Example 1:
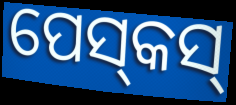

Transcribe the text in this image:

ପେସ୍‌କସ୍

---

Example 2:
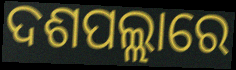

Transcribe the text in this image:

ଦଶପଲ୍ଲାରେ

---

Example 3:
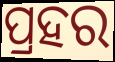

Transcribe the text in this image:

ପ୍ରହର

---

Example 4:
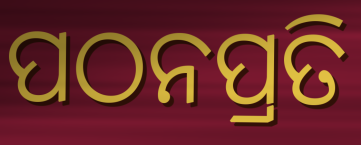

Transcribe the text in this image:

ପଠନପ୍ରତି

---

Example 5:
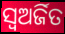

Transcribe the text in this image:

ସ୍ୱଅର୍ଜିତ